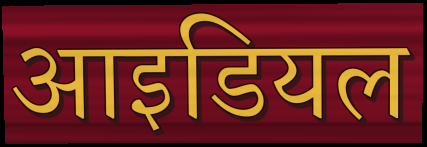
आइडियल